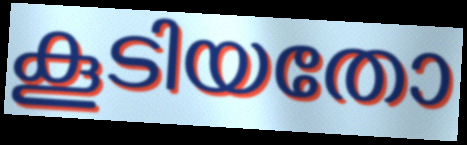
കൂടിയതോ